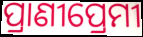
ପ୍ରାଣୀପ୍ରେମୀ